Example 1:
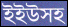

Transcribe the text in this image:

ইইউসহ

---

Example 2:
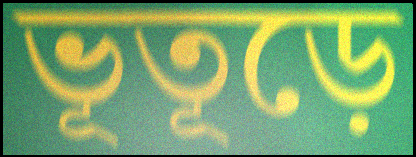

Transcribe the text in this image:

ভূতূড়ে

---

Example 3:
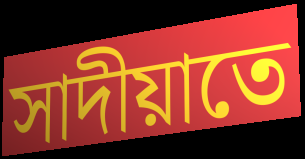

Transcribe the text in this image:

সাদীয়াতে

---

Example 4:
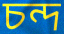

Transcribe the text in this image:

চন্দ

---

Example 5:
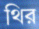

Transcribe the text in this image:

থির